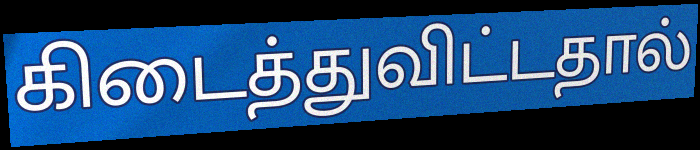
கிடைத்துவிட்டதால்